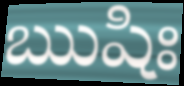
ఋషిః